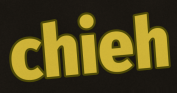
chieh